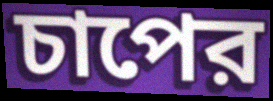
চাপের